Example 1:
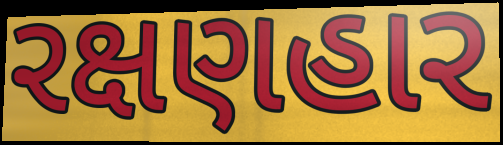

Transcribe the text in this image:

રક્ષણહાર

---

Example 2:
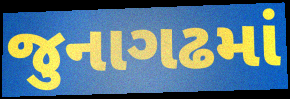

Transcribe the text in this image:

જુનાગઢમાં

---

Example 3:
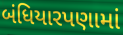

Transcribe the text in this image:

બંધિયારપણામાં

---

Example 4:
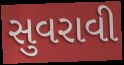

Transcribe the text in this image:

સુવરાવી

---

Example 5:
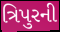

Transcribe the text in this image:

ત્રિપુરની